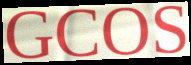
GCOS